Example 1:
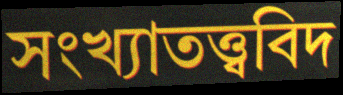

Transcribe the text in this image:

সংখ্যাতত্ত্ববিদ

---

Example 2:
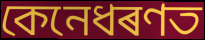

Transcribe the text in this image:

কেনেধৰণত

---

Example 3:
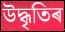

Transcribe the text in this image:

উদ্ধৃতিৰ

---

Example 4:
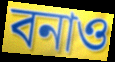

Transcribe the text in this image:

বনাও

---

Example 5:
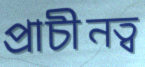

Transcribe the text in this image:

প্ৰাচীনত্ব